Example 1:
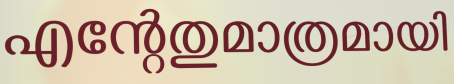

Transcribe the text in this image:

എന്റേതുമാത്രമായി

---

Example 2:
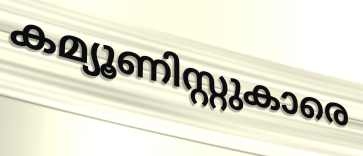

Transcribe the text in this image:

കമ്യൂണിസ്റ്റുകാരെ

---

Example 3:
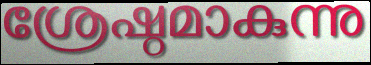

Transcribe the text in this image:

ശ്രേഷ്ഠമാകുന്നു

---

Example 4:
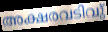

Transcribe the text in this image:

അക്ഷരവടിവു്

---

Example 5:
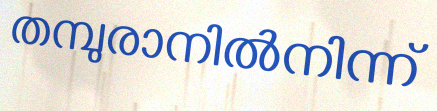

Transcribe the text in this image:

തമ്പുരാനിൽനിന്ന്